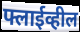
फ्लाईव्हील